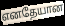
எனதேயான